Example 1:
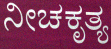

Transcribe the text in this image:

ನೀಚಕೃತ್ಯ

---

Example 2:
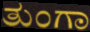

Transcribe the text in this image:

ತುಂಗಾ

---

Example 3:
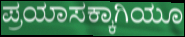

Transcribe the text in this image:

ಪ್ರಯಾಸಕ್ಕಾಗಿಯೂ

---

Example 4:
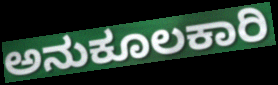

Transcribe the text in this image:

ಅನುಕೂಲಕಾರಿ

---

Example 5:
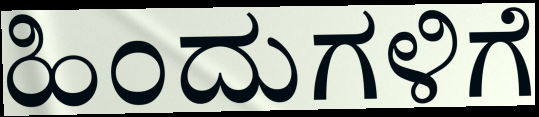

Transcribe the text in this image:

ಹಿಂದುಗಳಿಗೆ